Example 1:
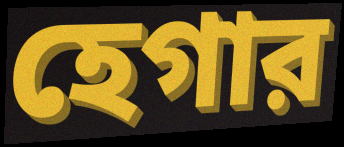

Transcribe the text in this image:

হেগার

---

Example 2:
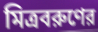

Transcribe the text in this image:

মিত্রবরুণের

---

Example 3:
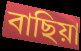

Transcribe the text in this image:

বাছিয়া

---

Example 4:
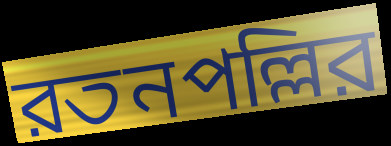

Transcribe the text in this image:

রতনপল্লির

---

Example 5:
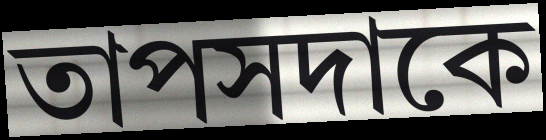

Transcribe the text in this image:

তাপসদাকে